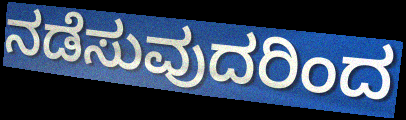
ನಡೆಸುವುದರಿಂದ